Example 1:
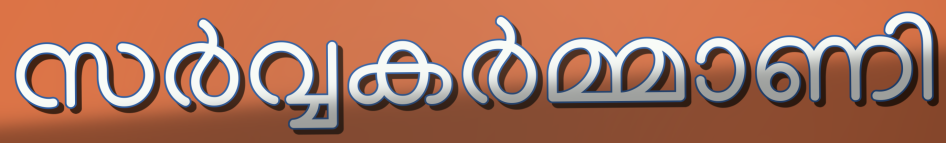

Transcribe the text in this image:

സർവ്വകർമ്മാണി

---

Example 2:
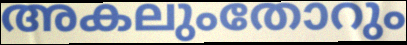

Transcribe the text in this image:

അകലുംതോറും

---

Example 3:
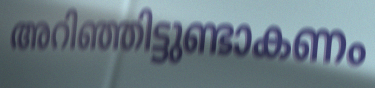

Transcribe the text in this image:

അറിഞ്ഞിട്ടുണ്ടാകണം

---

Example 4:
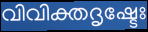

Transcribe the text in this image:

വിവിക്തദൃഷ്ടേഃ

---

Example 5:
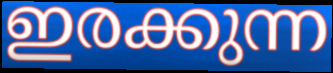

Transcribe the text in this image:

ഇരക്കുന്ന